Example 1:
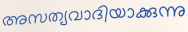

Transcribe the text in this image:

അസത്യവാദിയാക്കുന്നു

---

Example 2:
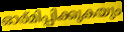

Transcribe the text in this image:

ഓര്മിപ്പിക്കുകയും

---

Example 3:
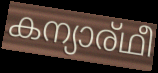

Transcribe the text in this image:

കന്യാര്ഥീ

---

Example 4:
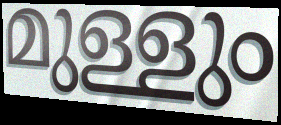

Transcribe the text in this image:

മുള്ളും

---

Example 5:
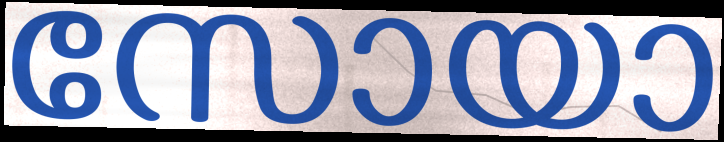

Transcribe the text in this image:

സോയാ